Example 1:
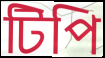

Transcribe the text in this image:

টিপি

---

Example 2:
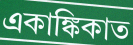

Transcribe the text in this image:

একাঙ্কিকাত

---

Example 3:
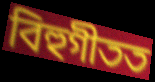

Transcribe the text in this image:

বিহুগীতত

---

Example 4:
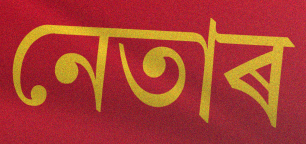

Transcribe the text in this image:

নেতাৰ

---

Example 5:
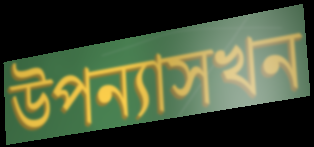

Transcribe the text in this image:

উপন্যাসখন